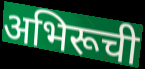
अभिरूची